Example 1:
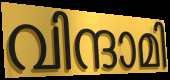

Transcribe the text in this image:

വിന്ദാമി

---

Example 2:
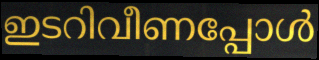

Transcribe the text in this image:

ഇടറിവീണപ്പോൾ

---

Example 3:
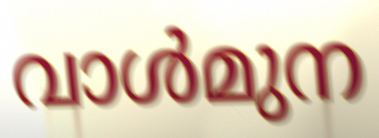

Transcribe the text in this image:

വാൾമുന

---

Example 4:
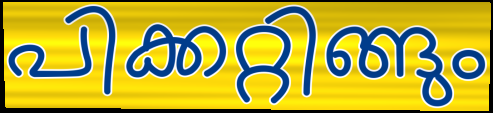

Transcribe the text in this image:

പിക്കറ്റിങ്ങും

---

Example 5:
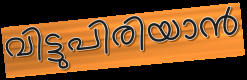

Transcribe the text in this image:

വിട്ടുപിരിയാൻ